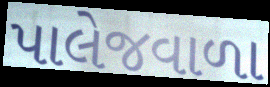
પાલેજવાળા